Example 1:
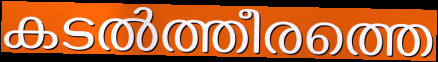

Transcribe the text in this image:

കടൽത്തീരത്തെ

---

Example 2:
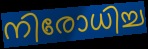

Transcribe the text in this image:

നിരോധിച്ച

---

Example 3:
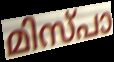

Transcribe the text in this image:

മിസ്പാ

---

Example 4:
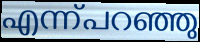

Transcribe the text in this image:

എന്ന്പറഞ്ഞു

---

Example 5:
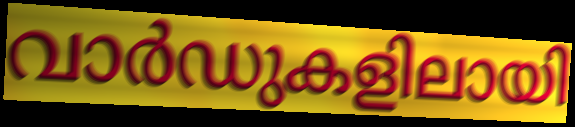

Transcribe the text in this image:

വാർഡുകളിലായി